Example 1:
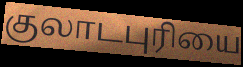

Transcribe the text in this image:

குலாடபுரியை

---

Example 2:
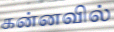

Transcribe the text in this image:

கன்னவில்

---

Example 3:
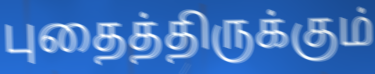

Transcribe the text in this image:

புதைத்திருக்கும்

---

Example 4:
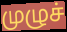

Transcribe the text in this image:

முழுச்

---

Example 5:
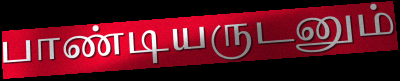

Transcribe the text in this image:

பாண்டியருடனும்